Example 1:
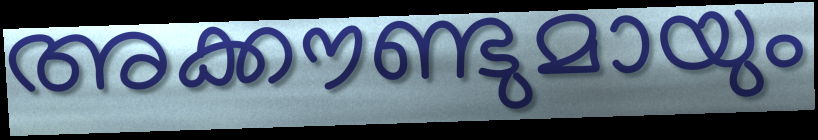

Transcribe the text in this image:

അക്കൗണ്ടുമായും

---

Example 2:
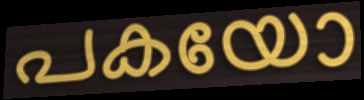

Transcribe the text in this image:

പകയോ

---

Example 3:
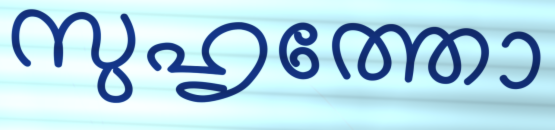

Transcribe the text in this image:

സുഹൃത്തോ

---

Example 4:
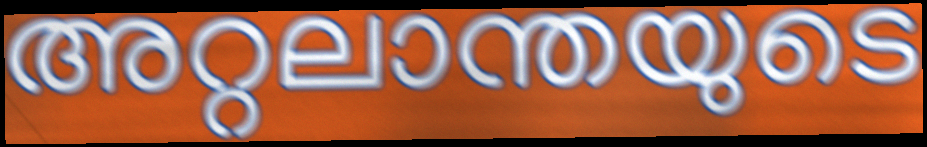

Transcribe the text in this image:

അറ്റലാന്തയുടെ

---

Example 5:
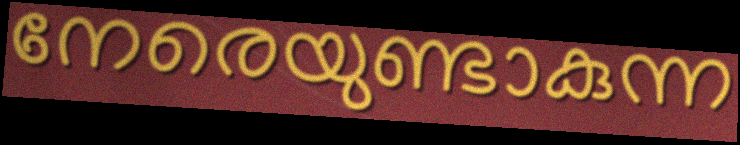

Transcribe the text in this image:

നേരെയുണ്ടാകുന്ന